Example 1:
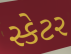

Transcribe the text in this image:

સ્કેટર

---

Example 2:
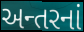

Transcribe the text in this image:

અન્તરનાં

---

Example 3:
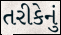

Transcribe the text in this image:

તરીકેનું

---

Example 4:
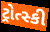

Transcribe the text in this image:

ટ્રોત્સ્કી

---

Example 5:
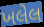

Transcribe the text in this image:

ખલેલ